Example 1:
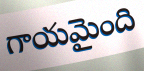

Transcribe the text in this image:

గాయమైంది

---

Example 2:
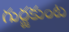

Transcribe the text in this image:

గుర్జకుంట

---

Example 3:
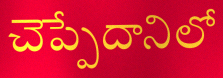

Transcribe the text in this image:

చెప్పేదానిలో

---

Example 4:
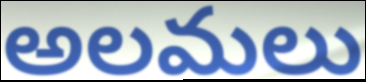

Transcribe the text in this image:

అలమలు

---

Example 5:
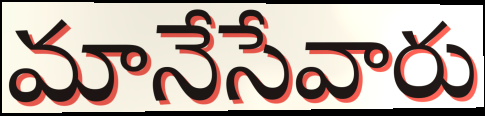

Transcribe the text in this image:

మానేసేవారు